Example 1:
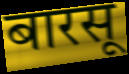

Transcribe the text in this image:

बारसू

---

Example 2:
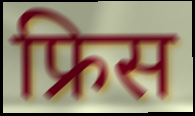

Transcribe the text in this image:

फ्रिस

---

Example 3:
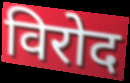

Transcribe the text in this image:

विरोद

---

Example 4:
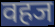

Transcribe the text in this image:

वहज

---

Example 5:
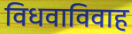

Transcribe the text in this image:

विधवाविवाह